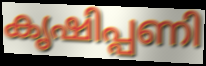
കൃഷിപ്പണി